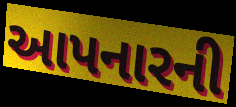
આપનારની